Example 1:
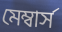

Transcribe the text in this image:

মেম্বার্স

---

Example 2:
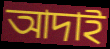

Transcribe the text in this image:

আদাই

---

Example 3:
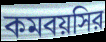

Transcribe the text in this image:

কমবয়সির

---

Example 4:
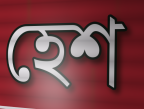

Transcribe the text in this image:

হেশ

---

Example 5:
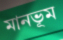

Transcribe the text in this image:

মানভূম